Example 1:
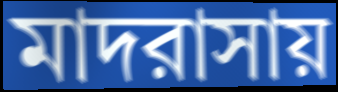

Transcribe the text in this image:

মাদরাসায়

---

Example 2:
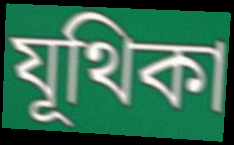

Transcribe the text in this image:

যূথিকা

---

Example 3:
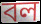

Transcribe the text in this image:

বল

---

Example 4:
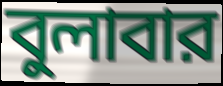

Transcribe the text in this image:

বুলাবার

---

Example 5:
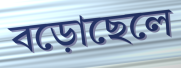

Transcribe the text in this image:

বড়োছেলে